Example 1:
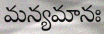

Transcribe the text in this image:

మన్యమానః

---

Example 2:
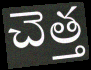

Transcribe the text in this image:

చెత్త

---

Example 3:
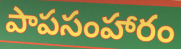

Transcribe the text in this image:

పాపసంహారం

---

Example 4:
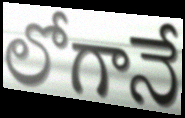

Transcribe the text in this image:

లోగానే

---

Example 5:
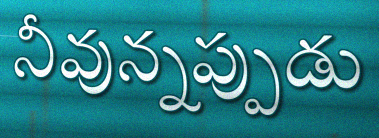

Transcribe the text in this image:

నీవున్నప్పుడు